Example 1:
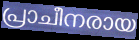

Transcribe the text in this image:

പ്രാചീനരായ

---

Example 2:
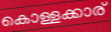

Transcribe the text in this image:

കൊള്ളക്കാര്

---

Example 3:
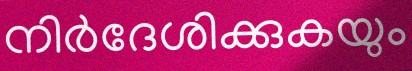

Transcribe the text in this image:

നിർദേശിക്കുകയും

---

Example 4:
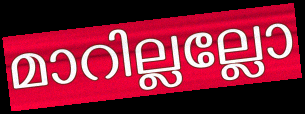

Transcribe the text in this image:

മാറില്ലല്ലോ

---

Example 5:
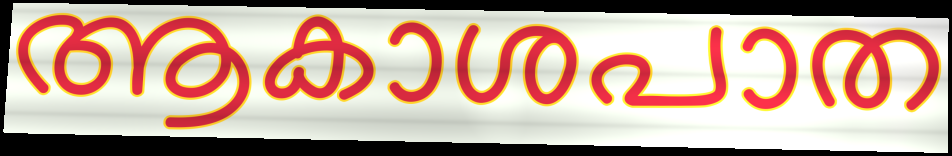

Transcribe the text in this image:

ആകാശപാത